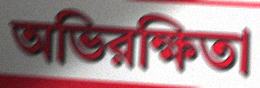
অভিরক্ষিতা